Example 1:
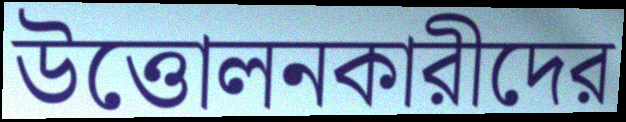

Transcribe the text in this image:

উত্তোলনকারীদের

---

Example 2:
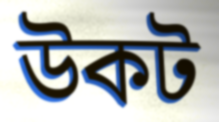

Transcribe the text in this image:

উকট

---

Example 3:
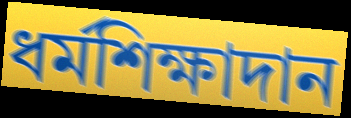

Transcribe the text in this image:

ধর্মশিক্ষাদান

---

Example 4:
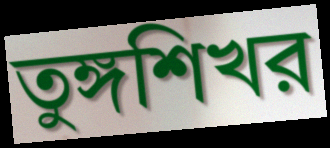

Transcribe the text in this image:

তুঙ্গশিখর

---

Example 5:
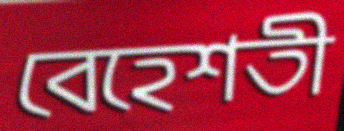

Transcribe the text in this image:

বেহেশতী